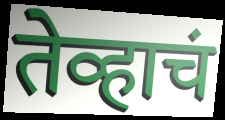
तेव्हाचं